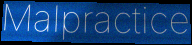
Malpractice